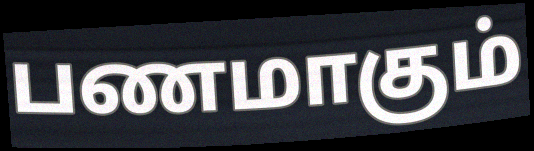
பணமாகும்